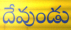
దేవుండు